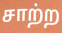
சாற்ற